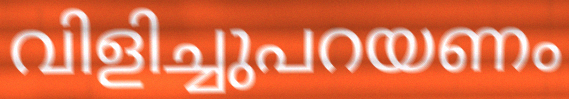
വിളിച്ചുപറയണം